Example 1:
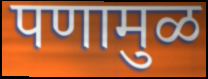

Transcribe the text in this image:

पणामुळ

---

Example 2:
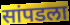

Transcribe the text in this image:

सांपडला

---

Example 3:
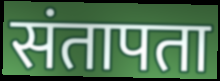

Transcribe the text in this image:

संतापता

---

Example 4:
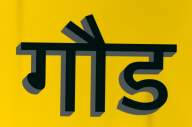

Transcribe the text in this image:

गौड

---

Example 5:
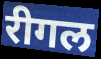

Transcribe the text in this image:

रीगल